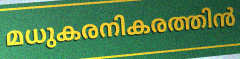
മധുകരനികരത്തിൻ